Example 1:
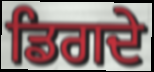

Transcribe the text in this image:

ਡਿਗਦੇ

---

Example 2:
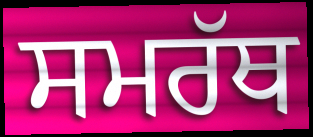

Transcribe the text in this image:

ਸਮਰੱਥ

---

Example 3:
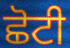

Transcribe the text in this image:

ਛੋਟੀ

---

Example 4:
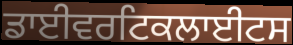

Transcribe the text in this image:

ਡਾਈਵਰਟਿਕਲਾਈਟਸ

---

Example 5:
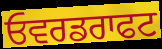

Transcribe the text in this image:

ਓਵਰਡਰਾਫਟ